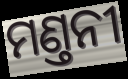
ମଣ୍ତନୀ